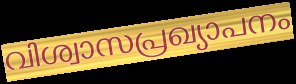
വിശ്വാസപ്രഖ്യാപനം